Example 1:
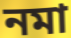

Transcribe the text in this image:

নমা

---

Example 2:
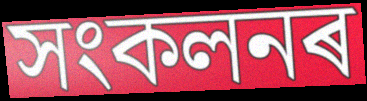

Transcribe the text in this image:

সংকলনৰ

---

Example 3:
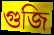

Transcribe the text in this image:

গুজি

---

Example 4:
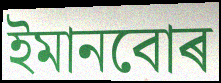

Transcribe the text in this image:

ইমানবোৰ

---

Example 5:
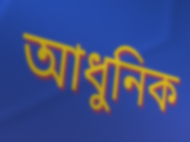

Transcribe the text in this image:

আধুনিক